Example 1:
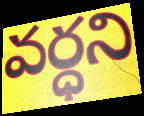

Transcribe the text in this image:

వర్ధని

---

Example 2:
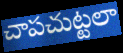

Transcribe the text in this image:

చాపచుట్టలా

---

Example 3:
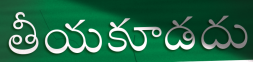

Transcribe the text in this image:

తీయకూడదు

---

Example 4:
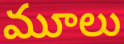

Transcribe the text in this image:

మూలు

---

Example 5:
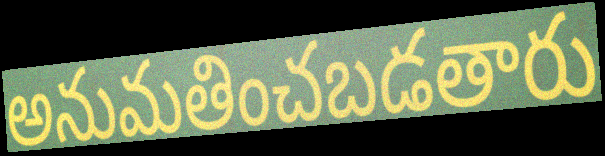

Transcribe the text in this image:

అనుమతించబడతారు